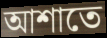
আশাতে